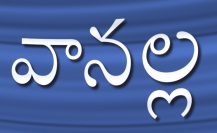
వానల్ల